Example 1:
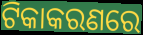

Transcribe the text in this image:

ଟିକାକରଣରେ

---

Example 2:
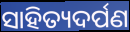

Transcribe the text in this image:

ସାହିତ୍ୟଦର୍ପଣ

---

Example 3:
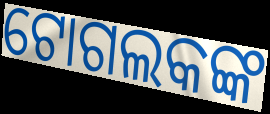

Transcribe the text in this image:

ଟୋଗଲକଙ୍କ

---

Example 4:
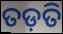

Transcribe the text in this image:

ତଡ଼ତି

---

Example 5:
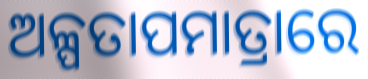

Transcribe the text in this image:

ଅଳ୍ପତାପମାତ୍ରାରେ